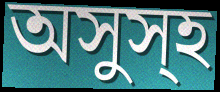
অসুস্হ